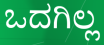
ಒದಗಿಲ್ಲ